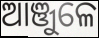
ଆଞ୍ଜୁଳେ